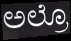
ಅಲ್ರೊ